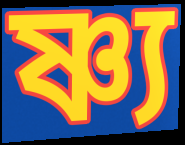
ষ্ণ্য